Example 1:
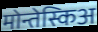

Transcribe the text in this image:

मोन्तेस्किअ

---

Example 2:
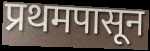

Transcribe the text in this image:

प्रथमपासून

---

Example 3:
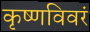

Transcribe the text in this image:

कृष्णविवरं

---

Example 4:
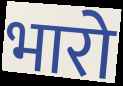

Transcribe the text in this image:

भारो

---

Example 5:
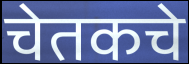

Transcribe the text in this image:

चेतकचे